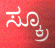
ಸ್ಕ್ರೂ